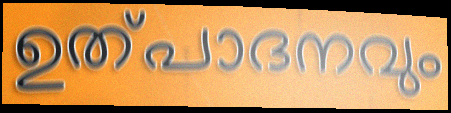
ഉത്പാദനവും